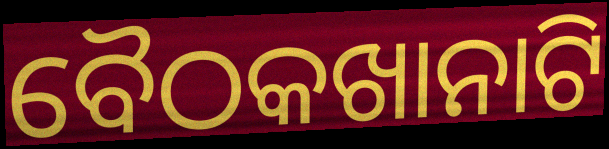
ବୈଠକଖାନାଟି